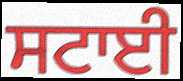
ਸਟਾਈ